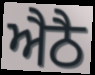
ਐਠੈ